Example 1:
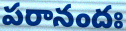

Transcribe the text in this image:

పరానందః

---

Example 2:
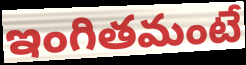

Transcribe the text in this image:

ఇంగితమంటే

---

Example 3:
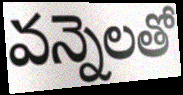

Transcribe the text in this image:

వన్నెలతో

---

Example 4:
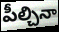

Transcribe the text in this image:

పీల్చినా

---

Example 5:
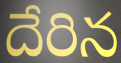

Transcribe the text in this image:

దేరిన